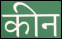
कीन